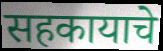
सहकायाचे